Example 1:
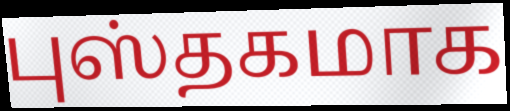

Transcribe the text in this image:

புஸ்தகமாக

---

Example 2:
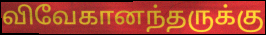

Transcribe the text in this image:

விவேகானந்தருக்கு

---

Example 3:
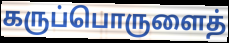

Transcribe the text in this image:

கருப்பொருளைத்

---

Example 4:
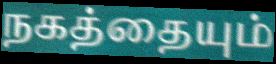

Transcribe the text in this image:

நகத்தையும்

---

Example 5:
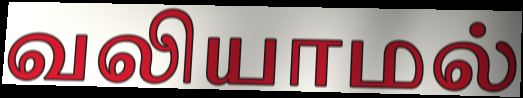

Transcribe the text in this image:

வலியாமல்